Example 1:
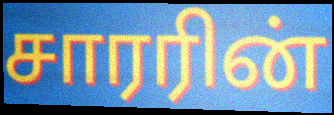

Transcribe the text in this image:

சாரரின்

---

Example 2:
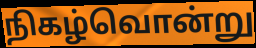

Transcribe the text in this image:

நிகழ்வொன்று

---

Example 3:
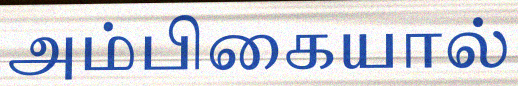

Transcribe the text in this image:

அம்பிகையால்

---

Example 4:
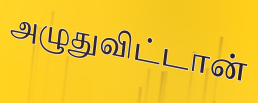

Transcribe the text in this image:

அழுதுவிட்டான்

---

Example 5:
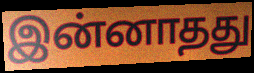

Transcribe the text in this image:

இன்னாதது